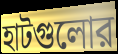
হাটগুলোর